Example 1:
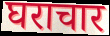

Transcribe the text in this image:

घराचार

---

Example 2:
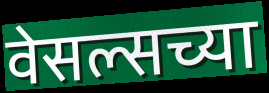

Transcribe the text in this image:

वेसल्सच्या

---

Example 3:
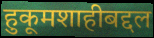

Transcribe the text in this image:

हुकूमशाहीबद्दल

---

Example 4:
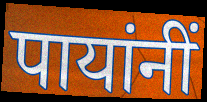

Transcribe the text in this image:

पायांनीं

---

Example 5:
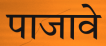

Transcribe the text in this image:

पाजावे